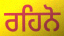
ਰਹਿਨੋ